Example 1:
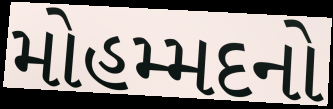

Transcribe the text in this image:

મોહમ્મદનો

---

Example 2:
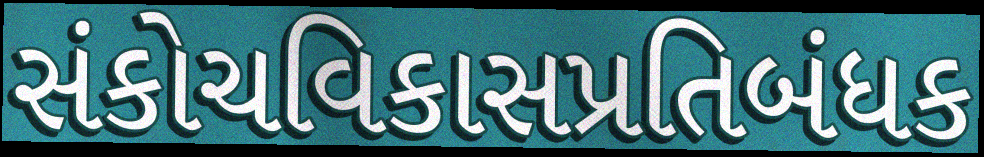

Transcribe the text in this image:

સંકોચવિકાસપ્રતિબંધક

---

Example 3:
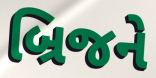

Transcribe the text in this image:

બ્રિજને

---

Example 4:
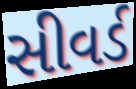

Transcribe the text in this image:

સીવર્ડ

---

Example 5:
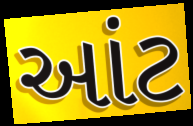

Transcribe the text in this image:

આંટ